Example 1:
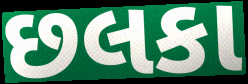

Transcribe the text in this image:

છલકા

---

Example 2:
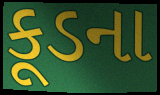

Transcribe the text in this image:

કૂડના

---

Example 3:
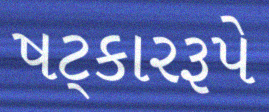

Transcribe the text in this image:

ષટ્કારરૂપે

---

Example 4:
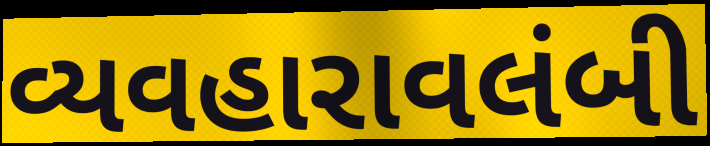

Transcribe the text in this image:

વ્યવહારાવલંબી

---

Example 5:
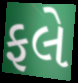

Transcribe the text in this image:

ફલે